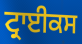
ਟ੍ਰਾਈਕਸ